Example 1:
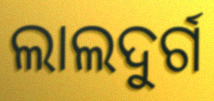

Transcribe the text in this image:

ଲାଲଦୁର୍ଗ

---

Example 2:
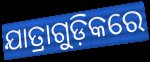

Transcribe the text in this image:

ଯାତ୍ରାଗୁଡ଼ିକରେ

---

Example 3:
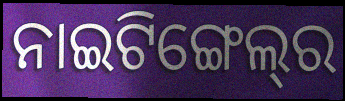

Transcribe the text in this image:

ନାଇଟିଙ୍ଗେଲ୍‌ର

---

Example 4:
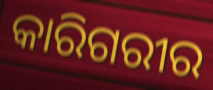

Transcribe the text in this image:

କାରିଗରୀର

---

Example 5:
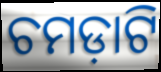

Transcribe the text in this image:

ଚମଡ଼ାଟି